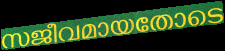
സജീവമായതോടെ